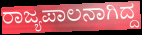
ರಾಜ್ಯಪಾಲನಾಗಿದ್ದ